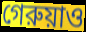
গেরুয়াও